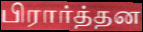
பிரார்த்தன